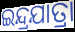
ଇନ୍ଦ୍ରଯାତ୍ରା